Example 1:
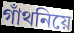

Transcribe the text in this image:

গাঁথনিয়ে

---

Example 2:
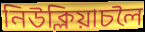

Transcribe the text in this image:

নিউক্লিয়াচলৈ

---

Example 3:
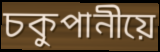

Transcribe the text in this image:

চকুপানীয়ে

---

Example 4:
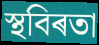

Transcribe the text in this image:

স্থবিৰতা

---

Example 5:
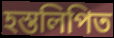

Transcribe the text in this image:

হস্তলিপিত